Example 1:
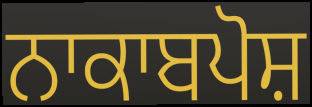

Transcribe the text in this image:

ਨਾਕਾਬਪੋਸ਼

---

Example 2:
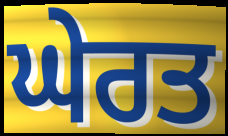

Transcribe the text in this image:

ਘੇਰਤ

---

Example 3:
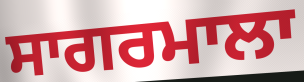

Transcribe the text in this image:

ਸਾਗਰਮਾਲਾ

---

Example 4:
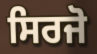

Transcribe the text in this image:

ਸਿਰਜੋ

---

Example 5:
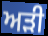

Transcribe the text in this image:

ਅੜੀ